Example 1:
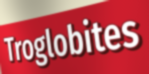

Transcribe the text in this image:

Troglobites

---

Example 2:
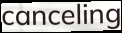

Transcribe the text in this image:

canceling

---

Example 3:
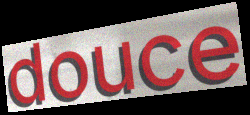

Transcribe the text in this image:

douce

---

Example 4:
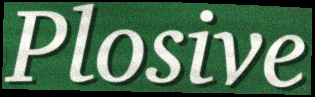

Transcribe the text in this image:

Plosive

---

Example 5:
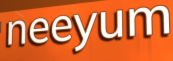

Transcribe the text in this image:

neeyum